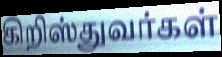
கிறிஸ்துவர்கள்